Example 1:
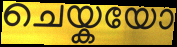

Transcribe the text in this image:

ചെയ്കയോ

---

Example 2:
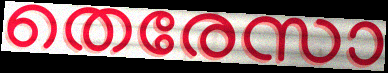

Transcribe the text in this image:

തെരേസാ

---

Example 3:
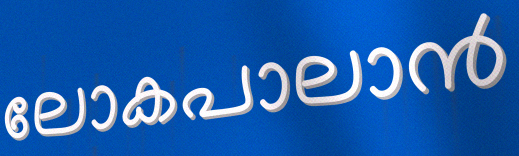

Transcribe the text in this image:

ലോകപാലാൻ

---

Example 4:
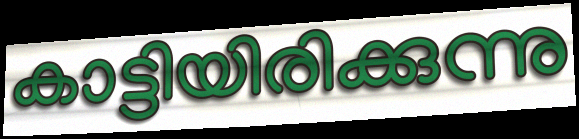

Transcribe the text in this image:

കാട്ടിയിരിക്കുന്നു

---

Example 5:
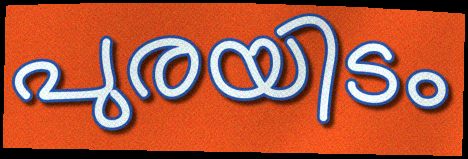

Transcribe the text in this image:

പുരയിടം